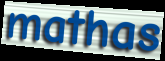
mathas